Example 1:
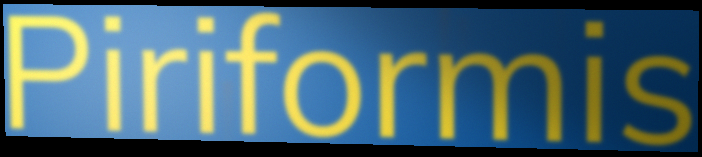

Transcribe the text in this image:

Piriformis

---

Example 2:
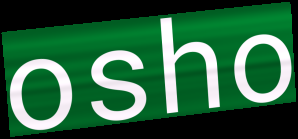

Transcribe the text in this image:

osho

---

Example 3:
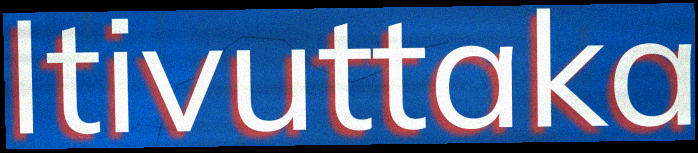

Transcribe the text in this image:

Itivuttaka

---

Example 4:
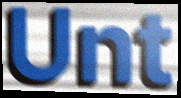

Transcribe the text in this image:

Unt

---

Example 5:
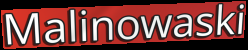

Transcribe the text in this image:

Malinowaski